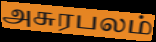
அசுரபலம்